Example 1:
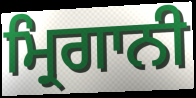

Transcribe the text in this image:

ਮ੍ਰਿਗਾਨੀ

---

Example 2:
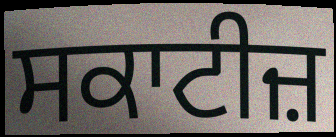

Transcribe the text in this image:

ਸਕਾਟੀਜ਼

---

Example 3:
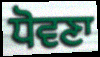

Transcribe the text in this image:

ਧੋਵਣਾ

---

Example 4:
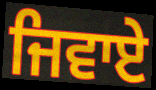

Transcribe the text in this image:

ਜਿਵਾਏ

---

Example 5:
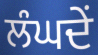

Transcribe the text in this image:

ਲੰਘਦੇਂ